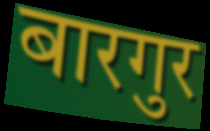
बारगुर